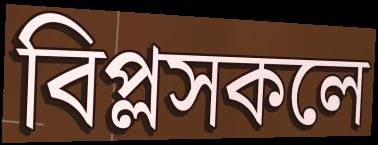
বিপ্লসকলে